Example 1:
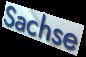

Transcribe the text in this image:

Sachse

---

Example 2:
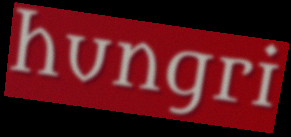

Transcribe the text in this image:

hungri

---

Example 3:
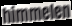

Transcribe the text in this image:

himmelen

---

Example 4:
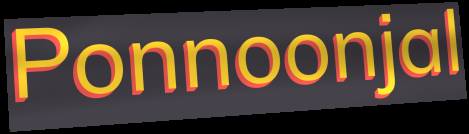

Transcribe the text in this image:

Ponnoonjal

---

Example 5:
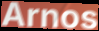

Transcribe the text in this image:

Arnos